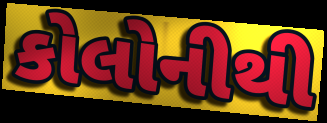
કોલોનીથી